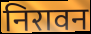
निरावन